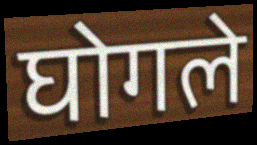
घोगले